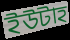
ইউটাহ